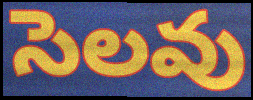
సెలవు